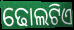
ଢୋଲଟିଏ